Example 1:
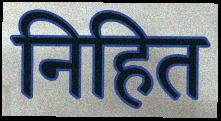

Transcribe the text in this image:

निहित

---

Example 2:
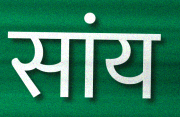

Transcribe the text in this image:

सांय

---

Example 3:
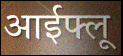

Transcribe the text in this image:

आईफ्लू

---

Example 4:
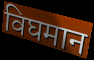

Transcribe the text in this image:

विघमान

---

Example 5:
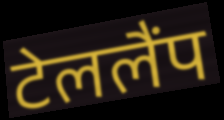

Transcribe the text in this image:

टेललैंप